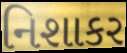
નિશાકર